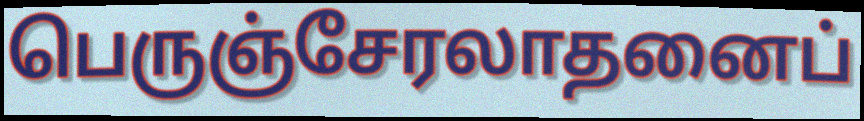
பெருஞ்சேரலாதனைப்